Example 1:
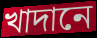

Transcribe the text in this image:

খাদানে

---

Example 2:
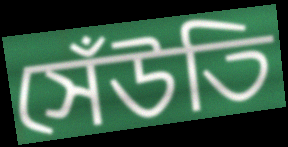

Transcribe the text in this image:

সেঁউতি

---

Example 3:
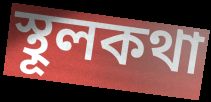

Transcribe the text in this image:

স্থূলকথা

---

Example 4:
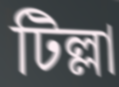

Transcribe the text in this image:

টিল্লা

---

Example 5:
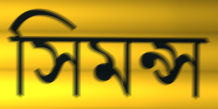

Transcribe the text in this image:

সিমন্স